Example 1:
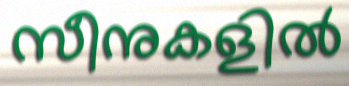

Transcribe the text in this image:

സീനുകളിൽ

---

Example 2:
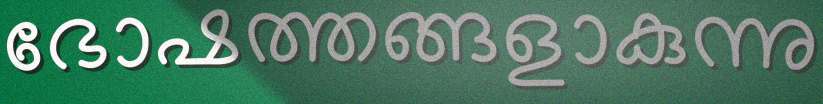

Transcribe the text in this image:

ഭോഷത്തങ്ങളാകുന്നു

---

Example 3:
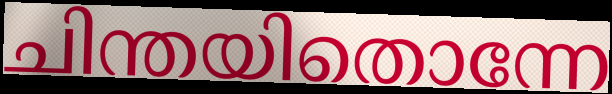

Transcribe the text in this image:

ചിന്തയിതൊന്നേ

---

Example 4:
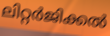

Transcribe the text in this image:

ലിറ്റർജിക്കൽ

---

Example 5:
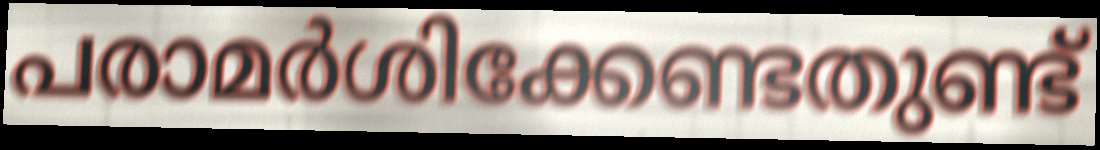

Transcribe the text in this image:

പരാമർശിക്കേണ്ടതുണ്ട്